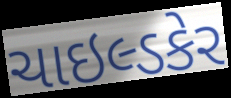
ચાઇલ્ડકેર